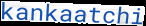
kankaatchi